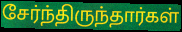
சேர்ந்திருந்தார்கள்